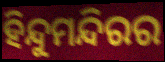
ହିନ୍ଦୁମନ୍ଦିରର